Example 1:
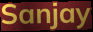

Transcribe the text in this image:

Sanjay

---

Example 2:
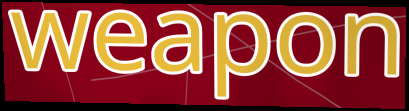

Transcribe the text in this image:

weapon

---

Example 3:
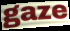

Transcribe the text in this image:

gaze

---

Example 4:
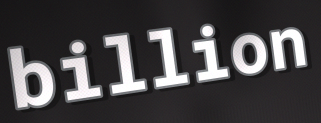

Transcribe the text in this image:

billion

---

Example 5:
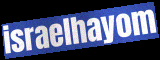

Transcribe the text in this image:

israelhayom